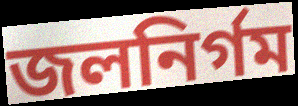
জলনির্গম